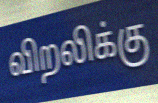
விறலிக்கு